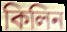
কিলিন